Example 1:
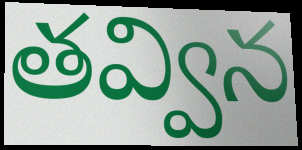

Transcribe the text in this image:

తవ్విన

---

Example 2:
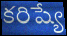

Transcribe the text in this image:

కరిష్యే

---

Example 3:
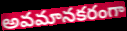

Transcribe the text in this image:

అవమానకరంగా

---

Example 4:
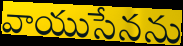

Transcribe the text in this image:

వాయుసేనను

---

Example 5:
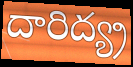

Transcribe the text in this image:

దారిద్య్ర